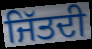
ਜਿੱਤਦੀ